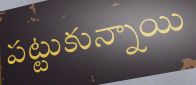
పట్టుకున్నాయి